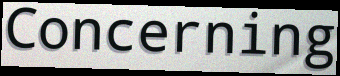
Concerning